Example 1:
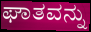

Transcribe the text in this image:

ಘಾತವನ್ನು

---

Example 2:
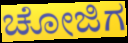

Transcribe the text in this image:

ಚೋಜಿಗ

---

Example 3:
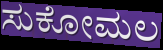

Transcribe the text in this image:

ಸುಕೋಮಲ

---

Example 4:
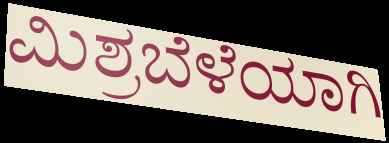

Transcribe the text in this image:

ಮಿಶ್ರಬೆಳೆಯಾಗಿ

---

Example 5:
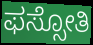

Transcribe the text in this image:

ಫಸ್ಸೋತಿ